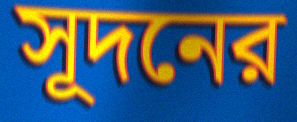
সূদনের